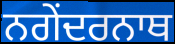
ਨਗੇਂਦਰਨਾਥ